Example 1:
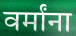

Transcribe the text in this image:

वर्मांना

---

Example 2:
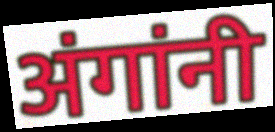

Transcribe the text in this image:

अंगांनी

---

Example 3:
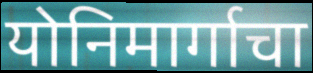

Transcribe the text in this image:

योनिमार्गाचा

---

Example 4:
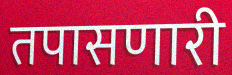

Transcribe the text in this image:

तपासणारी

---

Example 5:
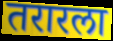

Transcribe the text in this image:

तरारला